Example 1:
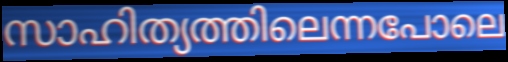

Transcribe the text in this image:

സാഹിത്യത്തിലെന്നപോലെ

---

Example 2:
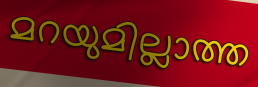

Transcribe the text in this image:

മറയുമില്ലാത്ത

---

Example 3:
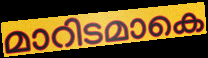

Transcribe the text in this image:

മാറിടമാകെ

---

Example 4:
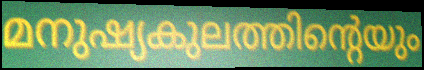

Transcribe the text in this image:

മനുഷ്യകുലത്തിന്റെയും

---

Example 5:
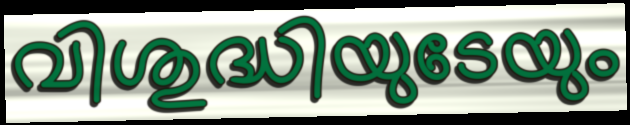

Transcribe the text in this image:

വിശുദ്ധിയുടേയും